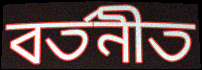
বৰ্তনীত